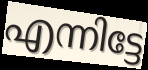
എന്നിട്ടേ